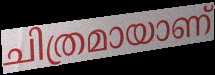
ചിത്രമായാണ്